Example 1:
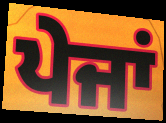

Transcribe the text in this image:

ਪੇਜਾਂ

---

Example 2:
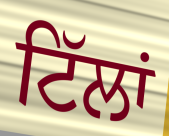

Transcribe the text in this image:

ਟਿੱਲਾਂ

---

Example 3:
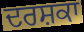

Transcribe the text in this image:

ਦਰਸ਼ਕਾ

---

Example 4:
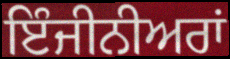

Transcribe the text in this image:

ਇੰਜੀਨੀਅਰਾਂ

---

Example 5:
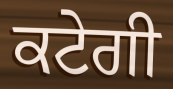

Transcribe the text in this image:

ਕਟੇਗੀ